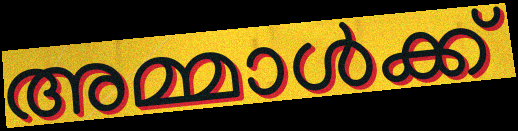
അമ്മാൾക്ക്